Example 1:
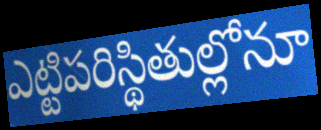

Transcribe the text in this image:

ఎట్టిపరిస్థితుల్లోనూ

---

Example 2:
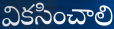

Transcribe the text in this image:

వికసించాలి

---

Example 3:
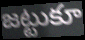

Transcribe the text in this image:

జట్టుకూ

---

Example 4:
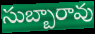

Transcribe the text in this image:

సుబ్బారావు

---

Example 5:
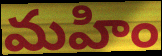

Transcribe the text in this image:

మహిం